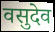
वसुदेव